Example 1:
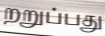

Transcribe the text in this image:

றறுப்பது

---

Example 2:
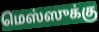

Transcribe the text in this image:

மெஸ்ஸுக்கு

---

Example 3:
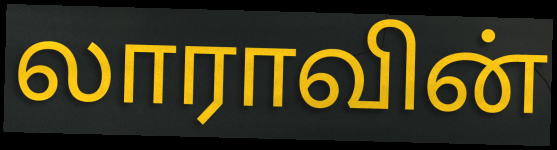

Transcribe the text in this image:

லாராவின்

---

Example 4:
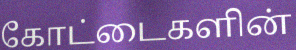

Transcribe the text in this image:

கோட்டைகளின்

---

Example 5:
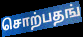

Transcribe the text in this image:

சொற்பதங்